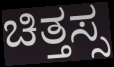
ಚಿತ್ತಸ್ಸ